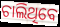
ଚାଲିଥିବେ